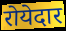
रोयेदार